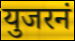
युजरनं